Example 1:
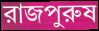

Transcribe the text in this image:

রাজপুরুষ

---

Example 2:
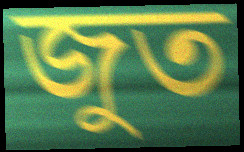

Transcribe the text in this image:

জুত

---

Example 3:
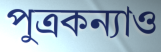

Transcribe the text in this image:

পুত্রকন্যাও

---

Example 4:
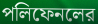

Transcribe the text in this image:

পলিফেনলের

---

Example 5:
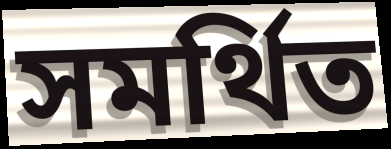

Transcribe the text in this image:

সমর্থিত